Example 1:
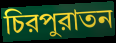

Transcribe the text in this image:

চিরপুরাতন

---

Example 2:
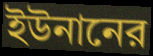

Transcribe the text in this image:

ইউনানের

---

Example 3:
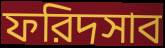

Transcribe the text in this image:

ফরিদসাব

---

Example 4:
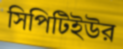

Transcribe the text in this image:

সিপিটিইউর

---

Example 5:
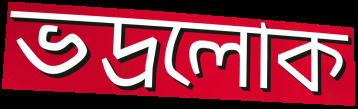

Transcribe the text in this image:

ভদ্রলোক